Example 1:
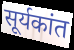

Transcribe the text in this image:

सूर्यकांत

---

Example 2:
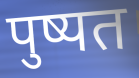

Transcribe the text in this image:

पुष्यत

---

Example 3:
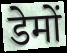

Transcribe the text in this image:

डेमों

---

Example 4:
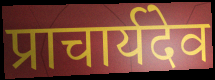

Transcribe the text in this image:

प्राचार्यदेव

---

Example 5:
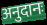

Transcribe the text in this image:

अनुदानः